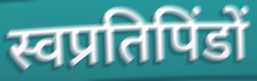
स्वप्रतिपिंडों